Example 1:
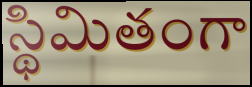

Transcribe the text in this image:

స్థిమితంగా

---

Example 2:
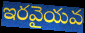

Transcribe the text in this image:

ఇరవైయవ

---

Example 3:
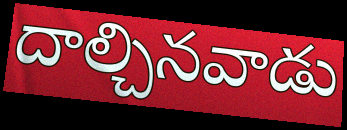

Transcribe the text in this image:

దాల్చినవాడు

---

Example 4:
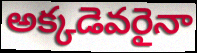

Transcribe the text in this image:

అక్కడెవరైనా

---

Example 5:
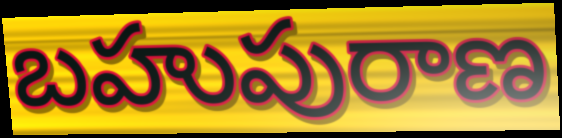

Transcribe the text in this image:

బహుపురాణ